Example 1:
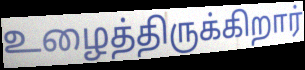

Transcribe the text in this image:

உழைத்திருக்கிறார்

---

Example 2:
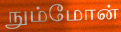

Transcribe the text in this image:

நும்மோன்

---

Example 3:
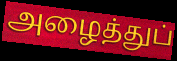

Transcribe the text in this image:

அழைத்துப்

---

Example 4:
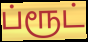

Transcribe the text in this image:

ப்ரூட்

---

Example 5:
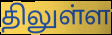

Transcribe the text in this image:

திலுள்ள